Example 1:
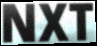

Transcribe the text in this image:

NXT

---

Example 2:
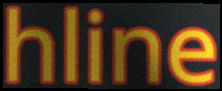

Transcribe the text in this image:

hline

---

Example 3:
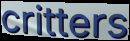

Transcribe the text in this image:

critters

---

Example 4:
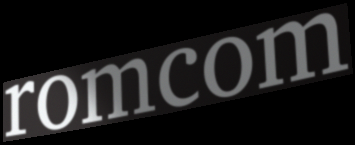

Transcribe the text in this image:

romcom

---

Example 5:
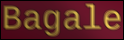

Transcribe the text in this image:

Bagale